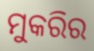
ମୁକରିର